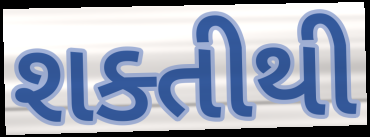
શક્તીથી